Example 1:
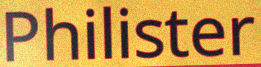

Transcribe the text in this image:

Philister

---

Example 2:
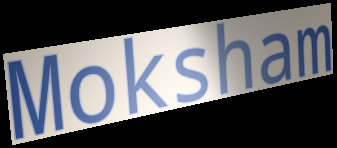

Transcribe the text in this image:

Moksham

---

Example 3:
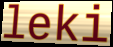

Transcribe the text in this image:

leki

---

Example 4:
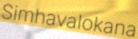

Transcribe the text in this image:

Simhavalokana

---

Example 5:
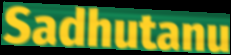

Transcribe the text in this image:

Sadhutanu